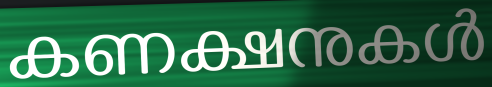
കണക്ഷനുകൾ